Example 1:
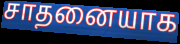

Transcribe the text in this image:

சாதனையாக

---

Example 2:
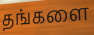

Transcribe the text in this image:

தங்களை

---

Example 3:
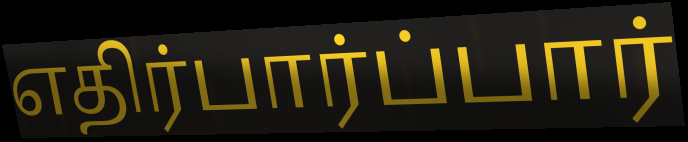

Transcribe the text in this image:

எதிர்பார்ப்பார்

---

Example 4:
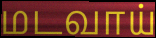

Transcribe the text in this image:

மடவாய்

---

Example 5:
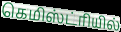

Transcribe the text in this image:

கெமிஸ்ட்ரியில்